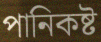
পানিকষ্ট